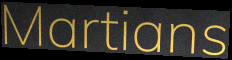
Martians